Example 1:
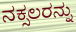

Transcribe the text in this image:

ನಕ್ಸಲರನ್ನು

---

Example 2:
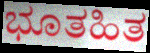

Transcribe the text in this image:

ಭೂತಹಿತ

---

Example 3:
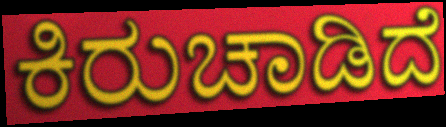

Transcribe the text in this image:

ಕಿರುಚಾಡಿದೆ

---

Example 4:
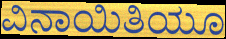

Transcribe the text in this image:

ವಿನಾಯಿತಿಯೂ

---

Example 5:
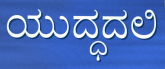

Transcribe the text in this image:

ಯುದ್ಧದಲಿ